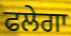
ਫਲੇਗਾ